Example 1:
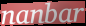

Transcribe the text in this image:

nanbar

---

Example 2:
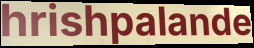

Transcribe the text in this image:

hrishpalande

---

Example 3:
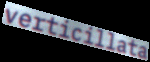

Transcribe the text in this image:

verticillata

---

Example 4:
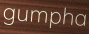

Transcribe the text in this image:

gumpha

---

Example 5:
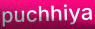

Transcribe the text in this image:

puchhiya